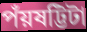
পঁয়ষট্টিটা